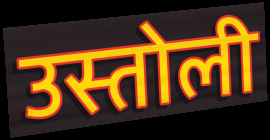
उस्तोली